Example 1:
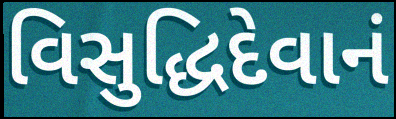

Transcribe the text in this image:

વિસુદ્ધિદેવાનં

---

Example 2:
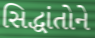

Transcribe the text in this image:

સિદ્ધાંતોને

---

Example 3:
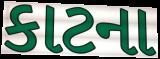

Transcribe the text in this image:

કાટના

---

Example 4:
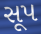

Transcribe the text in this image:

સૂપ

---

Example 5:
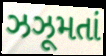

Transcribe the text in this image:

ઝઝૂમતાં